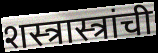
शस्त्रास्त्रांची